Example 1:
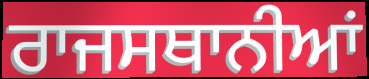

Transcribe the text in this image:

ਰਾਜਸਥਾਨੀਆਂ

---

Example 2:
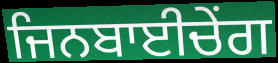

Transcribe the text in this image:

ਜਿਨਬਾਈਚੇਂਗ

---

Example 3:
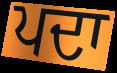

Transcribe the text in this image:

ਪਦਾ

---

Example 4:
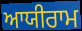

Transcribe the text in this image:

ਆਯੀਰਾਮ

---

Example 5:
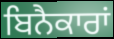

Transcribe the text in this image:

ਬਿਨੈਕਾਰਾਂ